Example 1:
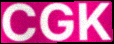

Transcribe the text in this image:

CGK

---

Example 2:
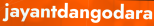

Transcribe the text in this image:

jayantdangodara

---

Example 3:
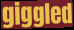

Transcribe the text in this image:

giggled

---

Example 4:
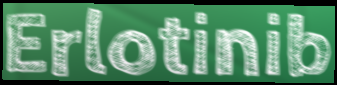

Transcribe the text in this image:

Erlotinib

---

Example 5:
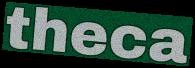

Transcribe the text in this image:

theca